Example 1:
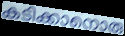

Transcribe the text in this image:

കടിക്കാനൊരു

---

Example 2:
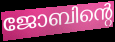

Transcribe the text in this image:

ജോബിന്റെ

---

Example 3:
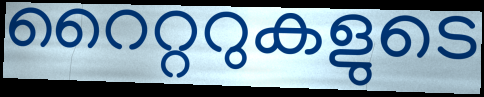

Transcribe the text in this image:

റൈറ്ററുകളുടെ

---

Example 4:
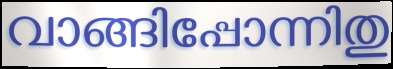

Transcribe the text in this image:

വാങ്ങിപ്പോന്നിതു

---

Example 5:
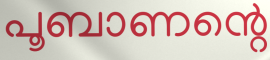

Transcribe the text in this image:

പൂബാണന്റെ